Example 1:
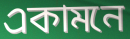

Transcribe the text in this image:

একামনে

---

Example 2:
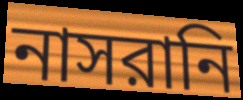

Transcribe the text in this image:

নাসরানি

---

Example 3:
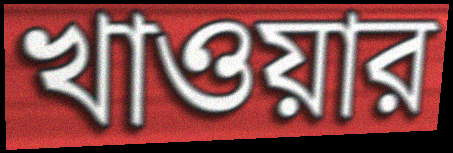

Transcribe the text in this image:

খাওয়ার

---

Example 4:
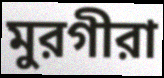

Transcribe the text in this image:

মুরগীরা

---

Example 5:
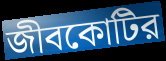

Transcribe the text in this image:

জীবকোটির